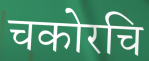
चकोरचि